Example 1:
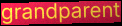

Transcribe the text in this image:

grandparent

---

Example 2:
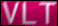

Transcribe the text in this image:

VLT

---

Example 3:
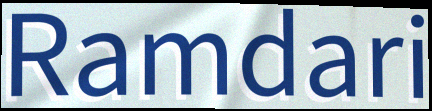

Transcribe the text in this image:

Ramdari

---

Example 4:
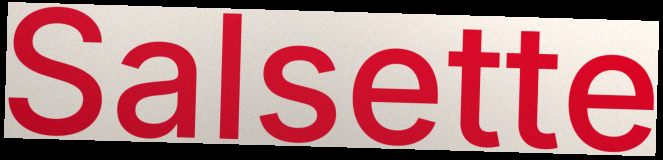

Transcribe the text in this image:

Salsette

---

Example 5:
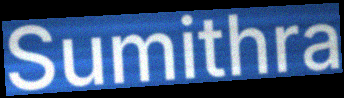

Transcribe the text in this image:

Sumithra